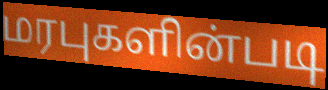
மரபுகளின்படி